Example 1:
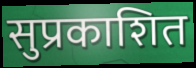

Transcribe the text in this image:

सुप्रकाशित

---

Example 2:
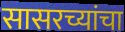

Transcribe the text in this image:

सासरच्यांचा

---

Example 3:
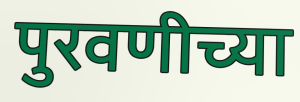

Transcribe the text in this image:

पुरवणीच्या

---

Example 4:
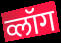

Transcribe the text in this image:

व्लॉग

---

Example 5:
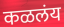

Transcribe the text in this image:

कळलंय